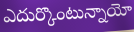
ఎదుర్కొంటున్నాయో